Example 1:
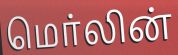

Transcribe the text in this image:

மெர்லின்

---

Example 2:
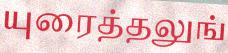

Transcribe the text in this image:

யுரைத்தலுங்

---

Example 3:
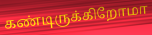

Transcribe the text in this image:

கண்டிருக்கிறோமா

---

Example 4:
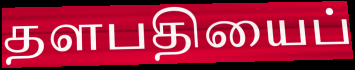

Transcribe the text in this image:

தளபதியைப்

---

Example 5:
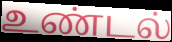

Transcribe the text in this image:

உண்டல்